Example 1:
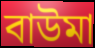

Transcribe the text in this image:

বাউমা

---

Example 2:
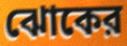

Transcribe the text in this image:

ঝোকের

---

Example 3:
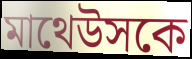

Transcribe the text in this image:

মাথেউসকে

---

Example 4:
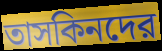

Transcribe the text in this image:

তাসকিনদের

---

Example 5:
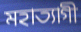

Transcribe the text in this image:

মহাত্যাগী